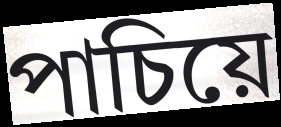
পাচিয়ে